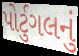
પોર્ટુગલનું